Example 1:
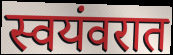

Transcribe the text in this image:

स्वयंवरात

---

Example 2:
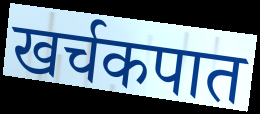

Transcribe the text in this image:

खर्चकपात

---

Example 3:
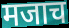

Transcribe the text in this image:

मजाच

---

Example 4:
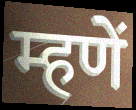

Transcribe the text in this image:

म्हणें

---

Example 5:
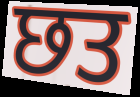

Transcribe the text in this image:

छउ